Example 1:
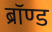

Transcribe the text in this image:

ब्रॉण्ड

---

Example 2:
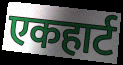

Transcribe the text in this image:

एकहार्ट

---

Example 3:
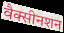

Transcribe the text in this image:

वैक्सीनशन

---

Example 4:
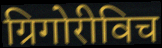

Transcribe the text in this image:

ग्रिगोरीविच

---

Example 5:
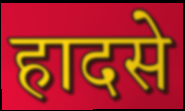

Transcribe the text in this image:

हादसे